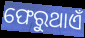
ଫେରୁଥାଏଁ